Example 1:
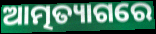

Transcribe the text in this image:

ଆତ୍ମତ୍ୟାଗରେ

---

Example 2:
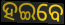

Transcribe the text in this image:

ହଇବେ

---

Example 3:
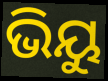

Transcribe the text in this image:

ଭିୟୁ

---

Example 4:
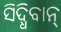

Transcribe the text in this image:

ସିଦ୍ଧିବାନ୍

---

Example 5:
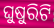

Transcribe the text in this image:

ଘୁଷୁରିଟି